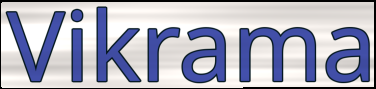
Vikrama